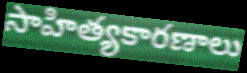
సాహిత్యకారణాలు